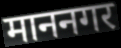
माननगर